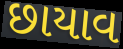
છાયાવ